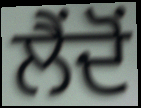
ਲੈਂਦੋਂ